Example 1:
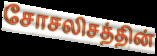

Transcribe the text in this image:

சோசலிசத்தின்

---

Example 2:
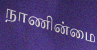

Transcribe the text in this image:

நாணின்மை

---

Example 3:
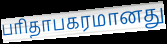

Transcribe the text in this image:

பரிதாபகரமானது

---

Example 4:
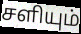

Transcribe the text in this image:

சளியும்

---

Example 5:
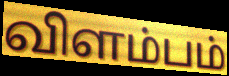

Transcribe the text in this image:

விளம்பம்